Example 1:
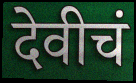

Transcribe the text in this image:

देवीचं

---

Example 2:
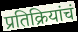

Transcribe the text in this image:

प्रतिक्रियांचं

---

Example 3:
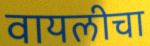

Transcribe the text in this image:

वायलीचा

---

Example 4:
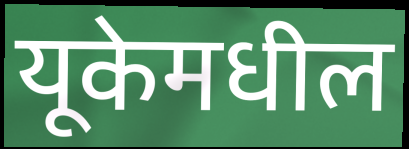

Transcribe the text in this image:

यूकेमधील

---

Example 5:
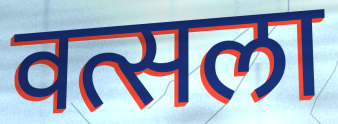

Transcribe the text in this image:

वत्सला